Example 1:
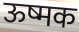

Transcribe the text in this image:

ऊष्मक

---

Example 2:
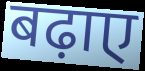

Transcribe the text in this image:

बढ़ाए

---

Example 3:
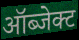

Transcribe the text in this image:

ऑब्जेक्ट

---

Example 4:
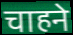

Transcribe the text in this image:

चाहने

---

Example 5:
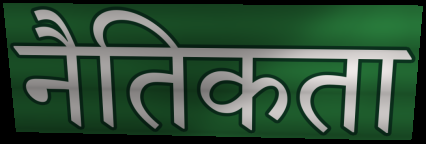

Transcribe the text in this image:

नैतिकता